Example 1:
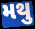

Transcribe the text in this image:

મથુ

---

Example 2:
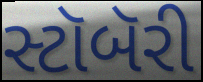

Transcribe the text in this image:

સ્ટૉબૅરી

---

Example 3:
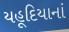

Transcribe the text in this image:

યહૂદિયાનાં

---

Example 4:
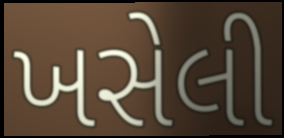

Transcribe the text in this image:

ખસેલી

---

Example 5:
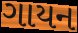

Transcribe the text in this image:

ગાયન